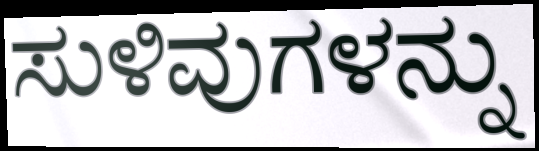
ಸುಳಿವುಗಳನ್ನು